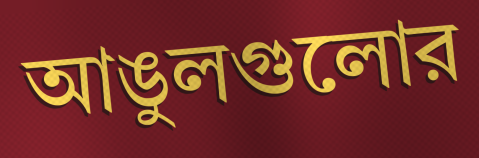
আঙুলগুলোর